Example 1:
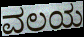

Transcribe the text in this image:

ವಲಯ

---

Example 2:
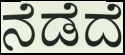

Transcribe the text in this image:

ನೆಡೆದೆ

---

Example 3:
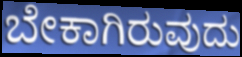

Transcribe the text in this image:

ಬೇಕಾಗಿರುವುದು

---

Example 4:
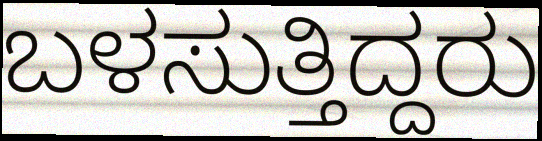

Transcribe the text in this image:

ಬಳಸುತ್ತಿದ್ದರು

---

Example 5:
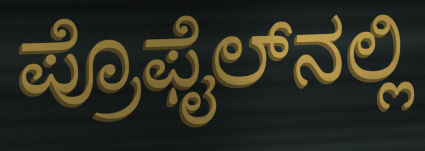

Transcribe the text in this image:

ಪ್ರೊಫೈಲ್‌ನಲ್ಲಿ